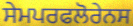
ਸੇਮਪਰਫਲੋਰੇਨਸ